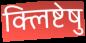
क्लिष्टेषु